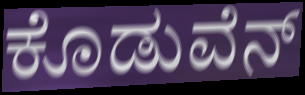
ಕೊಡುವೆನ್